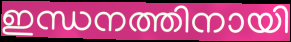
ഇന്ധനത്തിനായി